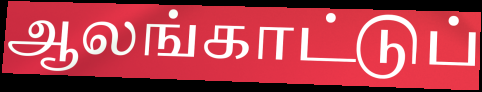
ஆலங்காட்டுப்